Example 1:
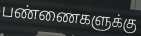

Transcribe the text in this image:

பண்ணைகளுக்கு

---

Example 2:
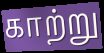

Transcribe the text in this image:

காற்று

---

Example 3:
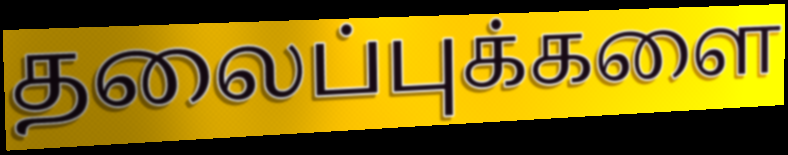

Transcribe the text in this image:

தலைப்புக்களை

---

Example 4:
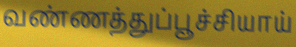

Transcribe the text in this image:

வண்ணத்துப்பூச்சியாய்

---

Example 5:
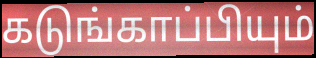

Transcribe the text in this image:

கடுங்காப்பியும்